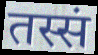
तस्सं